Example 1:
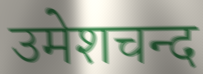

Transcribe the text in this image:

उमेशचन्द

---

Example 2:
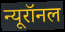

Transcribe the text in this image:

न्यूरॉनल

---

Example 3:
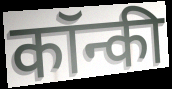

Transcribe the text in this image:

कॉन्की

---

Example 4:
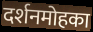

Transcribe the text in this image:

दर्शनमोहका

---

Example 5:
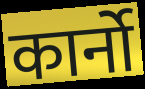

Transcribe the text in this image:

कार्नो